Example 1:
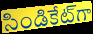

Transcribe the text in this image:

సిండికేట్‌గా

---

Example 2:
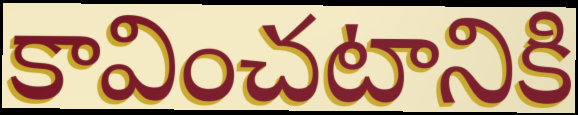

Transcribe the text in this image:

కావించటానికి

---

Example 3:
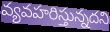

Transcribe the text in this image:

వ్యవహరిస్తున్నదని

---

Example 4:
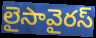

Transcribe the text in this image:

లైసావైరస్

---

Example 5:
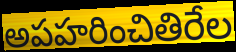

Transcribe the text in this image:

అపహరించితిరేల